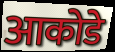
आकोडे